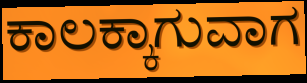
ಕಾಲಕ್ಕಾಗುವಾಗ